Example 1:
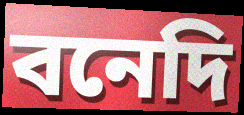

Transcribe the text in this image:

বনেদি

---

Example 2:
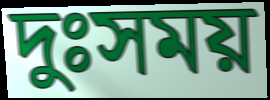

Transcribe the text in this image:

দুঃসময়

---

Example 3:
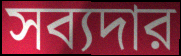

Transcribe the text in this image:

সব্যদার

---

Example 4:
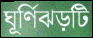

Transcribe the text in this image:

ঘূর্ণিঝড়টি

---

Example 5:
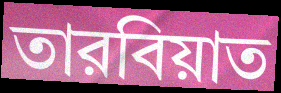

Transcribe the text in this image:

তারবিয়াত